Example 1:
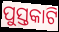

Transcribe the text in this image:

ପୁସ୍ତକାଟି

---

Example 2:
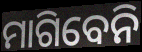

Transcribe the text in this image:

ମାଗିବେନି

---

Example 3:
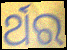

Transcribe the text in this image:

ର୍ଥର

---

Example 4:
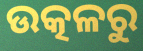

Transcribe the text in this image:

ଉତ୍କଳରୁ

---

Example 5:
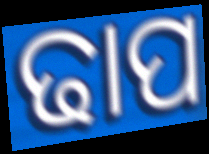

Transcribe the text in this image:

ଢାପ